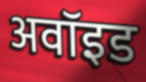
अवॉइड